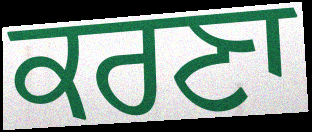
ਕਰਣਾ